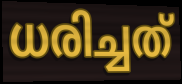
ധരിച്ചത്